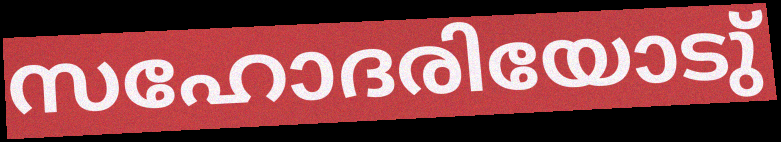
സഹോദരിയോടു്